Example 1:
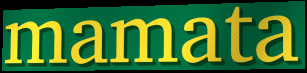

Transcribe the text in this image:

mamata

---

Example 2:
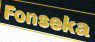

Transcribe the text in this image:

Fonseka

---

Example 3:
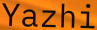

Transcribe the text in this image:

Yazhi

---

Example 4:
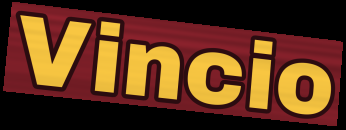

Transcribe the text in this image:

Vincio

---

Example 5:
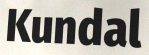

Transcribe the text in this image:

Kundal